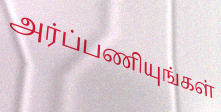
அர்ப்பணியுங்கள்